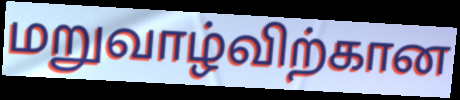
மறுவாழ்விற்கான